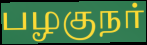
பழகுநர்